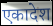
एकादेश